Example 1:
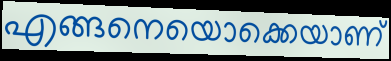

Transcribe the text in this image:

എങ്ങനെയൊക്കെയാണ്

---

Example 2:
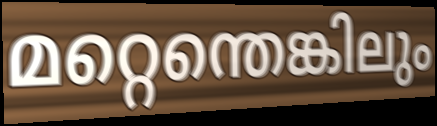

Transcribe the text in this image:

മറ്റെന്തെങ്കിലും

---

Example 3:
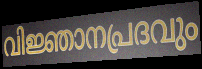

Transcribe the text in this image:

വിജ്ഞാനപ്രദവും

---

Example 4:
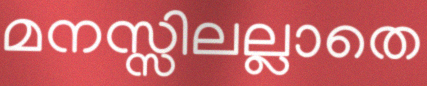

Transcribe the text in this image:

മനസ്സിലല്ലാതെ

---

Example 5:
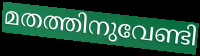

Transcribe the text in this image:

മതത്തിനുവേണ്ടി